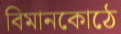
বিমানকোঠে